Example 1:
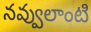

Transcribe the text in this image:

నవ్వులాంటి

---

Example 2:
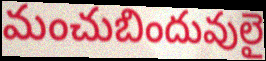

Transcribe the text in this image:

మంచుబిందువులై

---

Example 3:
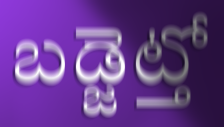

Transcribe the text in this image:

బడ్జెట్తో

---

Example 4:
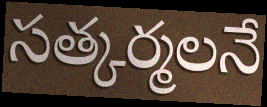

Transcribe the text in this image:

సత్కర్మలనే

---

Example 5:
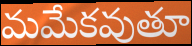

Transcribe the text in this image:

మమేకవుతూ